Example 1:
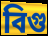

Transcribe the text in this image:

বিগু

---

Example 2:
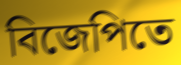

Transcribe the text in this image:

বিজেপিতে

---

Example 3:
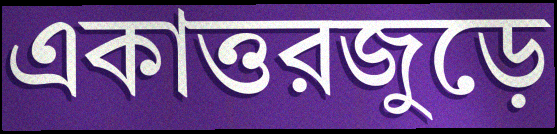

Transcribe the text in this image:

একাত্তরজুড়ে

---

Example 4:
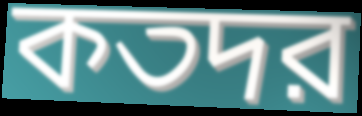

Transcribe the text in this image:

কতদর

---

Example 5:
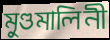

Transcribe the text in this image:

মুণ্ডমালিনী